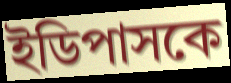
ইডিপাসকে